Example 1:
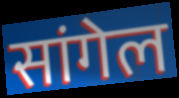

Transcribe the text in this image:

सांगेल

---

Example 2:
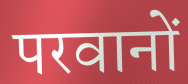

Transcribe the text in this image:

परवानों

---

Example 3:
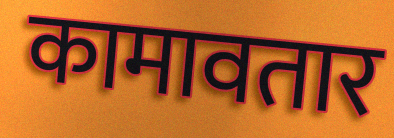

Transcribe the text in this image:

कामावतार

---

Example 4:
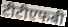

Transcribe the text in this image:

टीटीएफबी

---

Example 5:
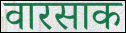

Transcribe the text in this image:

वारसाक